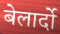
बेलार्दो